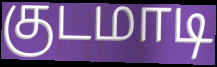
குடமாடி